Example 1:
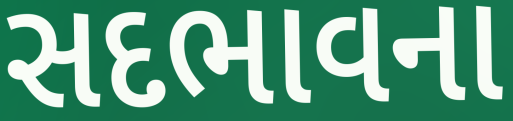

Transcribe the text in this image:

સદભાવના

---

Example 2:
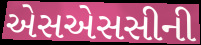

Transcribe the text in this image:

એસએસસીની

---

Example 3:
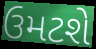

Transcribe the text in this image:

ઉમટશે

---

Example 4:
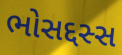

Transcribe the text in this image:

ભોસદ્દસ્સ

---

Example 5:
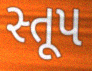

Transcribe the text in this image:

સ્તૂપ